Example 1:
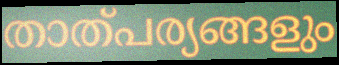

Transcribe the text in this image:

താത്പര്യങ്ങളും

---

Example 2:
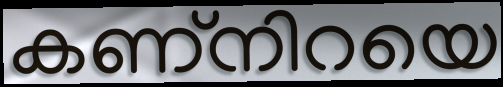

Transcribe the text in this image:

കണ്നിറയെ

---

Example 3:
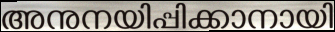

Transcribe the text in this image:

അനുനയിപ്പിക്കാനായി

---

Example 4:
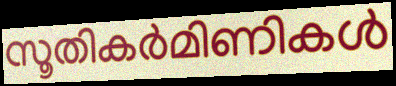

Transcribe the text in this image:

സൂതികർമിണികൾ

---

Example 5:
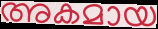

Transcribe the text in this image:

അകമായ